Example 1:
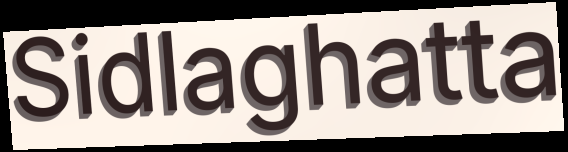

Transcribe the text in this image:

Sidlaghatta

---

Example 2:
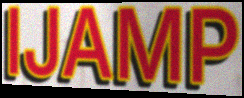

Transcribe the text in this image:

IJAMP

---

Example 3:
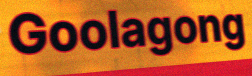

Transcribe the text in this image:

Goolagong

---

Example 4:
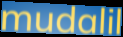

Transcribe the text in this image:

mudalil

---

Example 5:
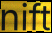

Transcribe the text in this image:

nift